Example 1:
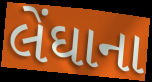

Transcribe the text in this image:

લેંઘાના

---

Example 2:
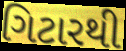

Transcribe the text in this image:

ગિટારથી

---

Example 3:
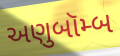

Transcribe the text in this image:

અણુબૉમ્બ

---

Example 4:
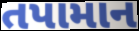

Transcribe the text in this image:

તપામાન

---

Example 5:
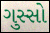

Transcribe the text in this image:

ગુસ્સો